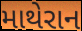
માથેરાન